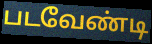
படவேண்டி